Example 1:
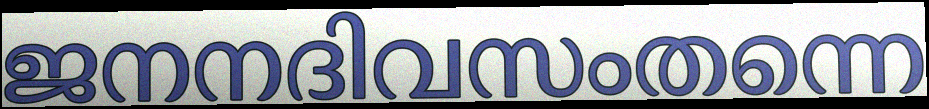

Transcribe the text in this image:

ജനനദിവസംതന്നെ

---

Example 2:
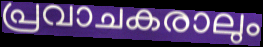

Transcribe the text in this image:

പ്രവാചകരാലും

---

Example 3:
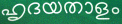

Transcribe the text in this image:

ഹൃദയതാളം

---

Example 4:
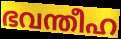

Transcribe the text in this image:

ഭവന്തീഹ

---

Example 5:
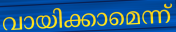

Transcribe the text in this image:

വായിക്കാമെന്ന്